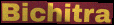
Bichitra